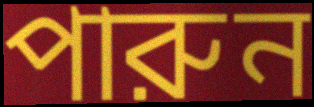
পারুন